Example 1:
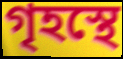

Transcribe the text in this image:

গৃহস্থে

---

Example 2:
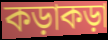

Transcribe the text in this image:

কড়াকড়া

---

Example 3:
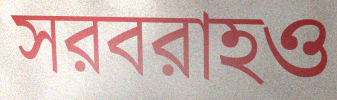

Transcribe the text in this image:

সরবরাহও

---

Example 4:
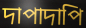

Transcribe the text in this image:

দাপাদাপি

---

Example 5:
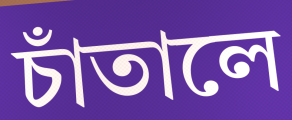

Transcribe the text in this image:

চাঁতালে